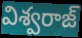
విశ్వరాజ్